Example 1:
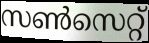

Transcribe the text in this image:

സൺസെറ്റ്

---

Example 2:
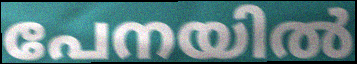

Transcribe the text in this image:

പേനയിൽ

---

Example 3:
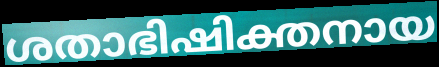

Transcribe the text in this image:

ശതാഭിഷിക്തനായ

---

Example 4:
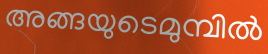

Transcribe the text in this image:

അങ്ങയുടെമുമ്പിൽ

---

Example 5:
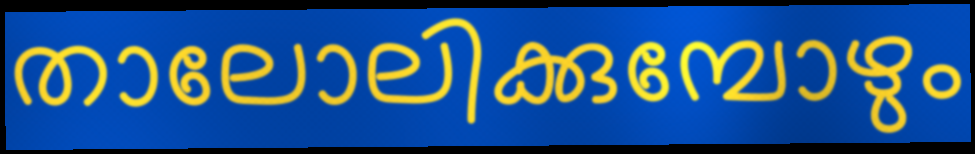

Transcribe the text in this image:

താലോലിക്കുമ്പോഴും